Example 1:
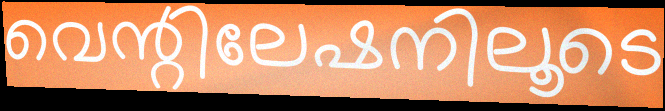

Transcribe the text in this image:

വെന്റിലേഷനിലൂടെ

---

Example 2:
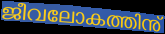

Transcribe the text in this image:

ജീവലോകത്തിനു്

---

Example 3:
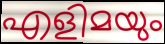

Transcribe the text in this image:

എളിമയും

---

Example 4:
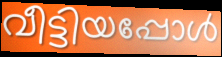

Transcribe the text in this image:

വീട്ടിയപ്പോൾ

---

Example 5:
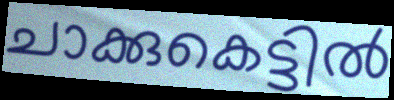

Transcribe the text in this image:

ചാക്കുകെട്ടിൽ